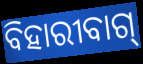
ବିହାରୀବାଗ୍